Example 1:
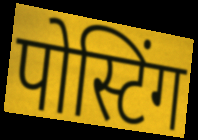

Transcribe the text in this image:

पोस्टिंग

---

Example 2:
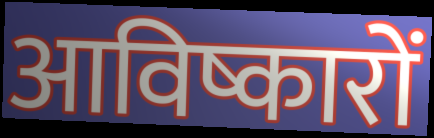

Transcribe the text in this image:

आविष्कारों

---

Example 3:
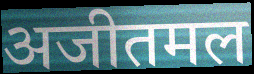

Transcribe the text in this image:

अजीतमल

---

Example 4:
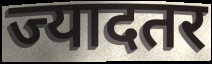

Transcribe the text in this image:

ज्यादतर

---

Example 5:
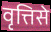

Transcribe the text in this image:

वृत्तिसे